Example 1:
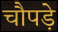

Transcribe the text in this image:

चौपड़े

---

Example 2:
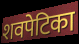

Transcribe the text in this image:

शवपेटिका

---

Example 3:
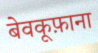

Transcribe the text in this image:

बेवकूफ़ाना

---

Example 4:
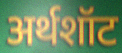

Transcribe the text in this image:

अर्थशॉट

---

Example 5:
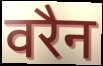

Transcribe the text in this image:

वरैन